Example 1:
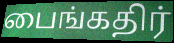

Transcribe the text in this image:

பைங்கதிர்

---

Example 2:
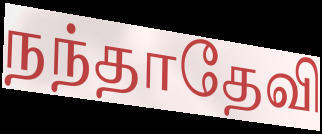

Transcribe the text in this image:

நந்தாதேவி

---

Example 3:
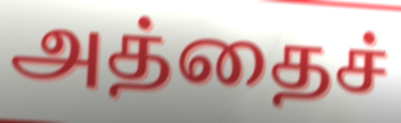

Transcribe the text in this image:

அத்தைச்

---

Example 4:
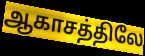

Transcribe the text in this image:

ஆகாசத்திலே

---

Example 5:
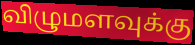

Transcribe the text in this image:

விழுமளவுக்கு